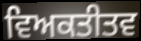
ਵਿਅਕਤੀਤਵ